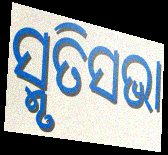
ସ୍ମୃତିସଭା